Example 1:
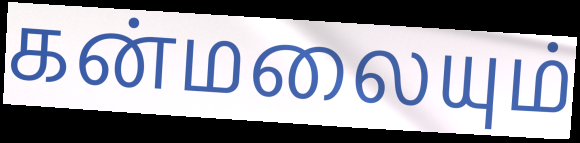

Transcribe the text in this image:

கன்மலையும்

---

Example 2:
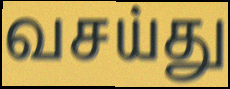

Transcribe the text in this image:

வசய்து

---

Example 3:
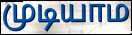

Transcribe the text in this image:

முடியாம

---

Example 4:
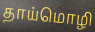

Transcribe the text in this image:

தாய்மொழி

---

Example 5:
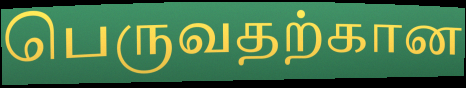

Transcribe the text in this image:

பெருவதற்கான